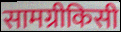
सामग्रीकिसी